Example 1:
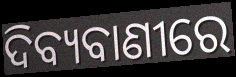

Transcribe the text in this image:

ଦିବ୍ୟବାଣୀରେ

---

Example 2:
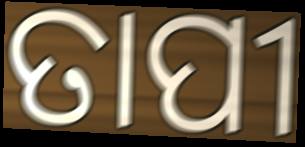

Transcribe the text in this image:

ତାପୀ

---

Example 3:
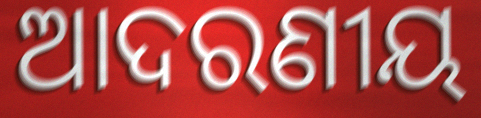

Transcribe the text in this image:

ଆଦରଣୀୟ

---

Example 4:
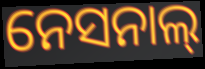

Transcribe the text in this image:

ନେସନାଲ୍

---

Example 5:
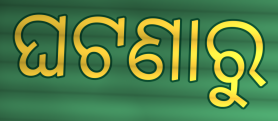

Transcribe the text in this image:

ଘଟଣାରୁ